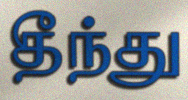
தீந்து